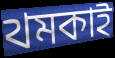
থমকাই